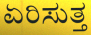
ಏರಿಸುತ್ತ